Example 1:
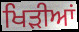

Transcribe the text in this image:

ਖਿੜੀਆਂ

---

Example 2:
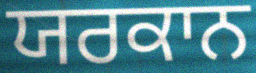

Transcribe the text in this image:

ਯਰਕਾਨ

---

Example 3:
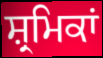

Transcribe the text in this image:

ਸ਼੍ਰਮਿਕਾਂ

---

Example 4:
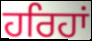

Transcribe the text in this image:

ਹਰਿਹਾਂ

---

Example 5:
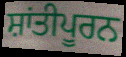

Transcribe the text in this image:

ਸ਼ਾਂਤੀਪੂਰਨ